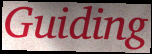
Guiding